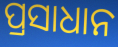
ପ୍ରସାଧାନ